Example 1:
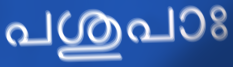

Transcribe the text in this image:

പശുപാഃ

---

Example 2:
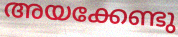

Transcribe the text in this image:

അയക്കേണ്ടു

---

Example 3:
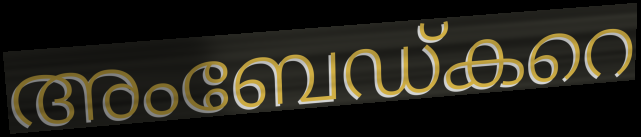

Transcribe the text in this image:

അംബേഡ്കറെ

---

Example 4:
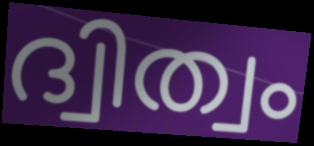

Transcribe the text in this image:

ദ്വിത്വം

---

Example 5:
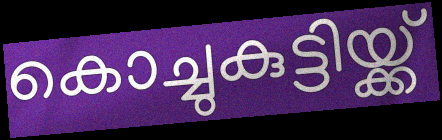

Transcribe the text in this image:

കൊച്ചുകുട്ടിയ്ക്ക്